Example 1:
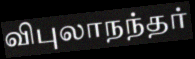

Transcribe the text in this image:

விபுலாநந்தர்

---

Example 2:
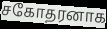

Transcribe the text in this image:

சகோதரனாக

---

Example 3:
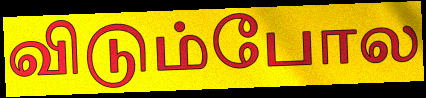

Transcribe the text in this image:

விடும்போல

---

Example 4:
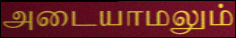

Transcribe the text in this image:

அடையாமலும்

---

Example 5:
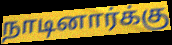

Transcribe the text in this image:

நாடினார்க்கு